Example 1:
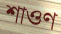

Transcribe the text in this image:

শাওণ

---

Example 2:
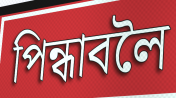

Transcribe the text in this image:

পিন্ধাবলৈ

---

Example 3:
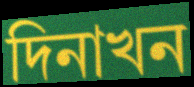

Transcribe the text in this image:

দিনাখন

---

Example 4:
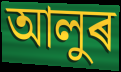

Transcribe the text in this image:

আলুৰ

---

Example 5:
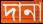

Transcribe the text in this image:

দানা